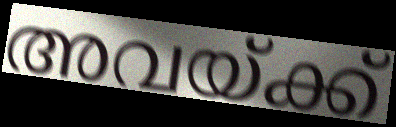
അവയ്ക്ക്